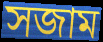
সজাম